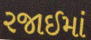
રજાઈમાં